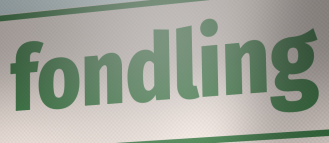
fondling